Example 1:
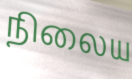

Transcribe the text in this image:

நிலைய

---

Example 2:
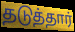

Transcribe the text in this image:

தடுத்தார்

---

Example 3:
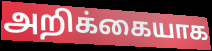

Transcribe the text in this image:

அறிக்கையாக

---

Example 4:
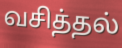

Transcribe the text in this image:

வசித்தல்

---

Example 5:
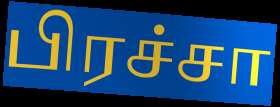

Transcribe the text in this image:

பிரச்சா